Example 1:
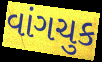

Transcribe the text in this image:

વાંગચુક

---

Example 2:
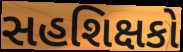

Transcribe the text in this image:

સહશિક્ષકો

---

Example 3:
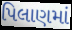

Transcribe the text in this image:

પિલાણમાં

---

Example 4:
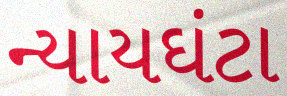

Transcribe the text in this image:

ન્યાયઘંટા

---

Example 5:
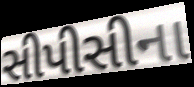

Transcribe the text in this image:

સીપીસીના